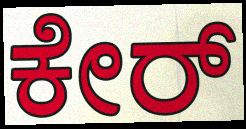
ಕೇರ್